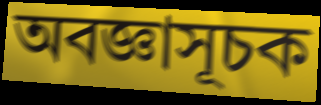
অবজ্ঞাসূচক